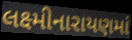
લક્ષ્મીનારાયણમાં